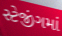
સ્ટેજીંગમાં